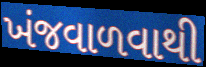
ખંજવાળવાથી